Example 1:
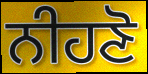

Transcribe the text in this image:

ਨੀਹਣੋ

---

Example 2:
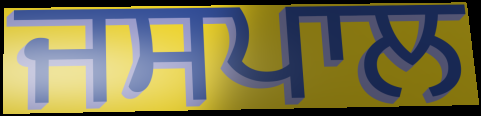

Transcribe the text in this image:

ਜਸਪਾਲ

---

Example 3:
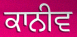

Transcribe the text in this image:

ਕਾਨੀਵ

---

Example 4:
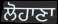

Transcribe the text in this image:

ਲੋਹਾਣਾ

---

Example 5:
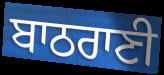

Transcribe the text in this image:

ਬਾਠਰਾਣੀ